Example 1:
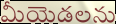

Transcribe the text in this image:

మీయెడలను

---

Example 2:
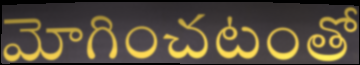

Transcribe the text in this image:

మోగించటంతో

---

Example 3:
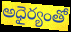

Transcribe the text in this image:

అధైర్యంతో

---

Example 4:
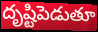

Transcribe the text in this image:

దృష్టిపెడుతూ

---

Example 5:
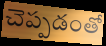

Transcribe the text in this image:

చెప్పడంతో